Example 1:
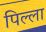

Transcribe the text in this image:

पिल्ला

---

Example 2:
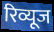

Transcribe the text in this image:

रिव्यूज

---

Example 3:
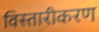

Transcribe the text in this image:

विस्तारीकरण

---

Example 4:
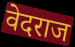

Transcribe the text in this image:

वेदराज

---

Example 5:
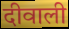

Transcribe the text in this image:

दीवाली